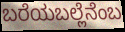
ಬರೆಯಬಲ್ಲೆನೆಂಬ